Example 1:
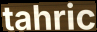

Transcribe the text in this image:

tahric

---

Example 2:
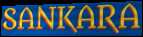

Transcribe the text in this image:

SANKARA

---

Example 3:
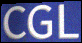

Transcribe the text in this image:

CGL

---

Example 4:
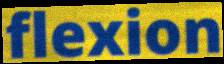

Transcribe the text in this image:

flexion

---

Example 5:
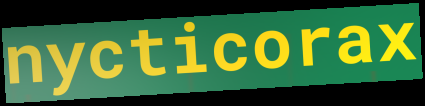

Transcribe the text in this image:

nycticorax